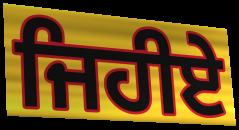
ਜਿਹੀਏ